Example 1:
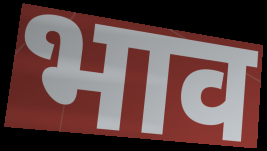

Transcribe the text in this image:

भाव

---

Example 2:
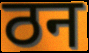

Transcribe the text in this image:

ठन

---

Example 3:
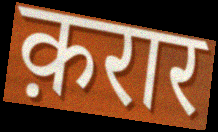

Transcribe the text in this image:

क़रार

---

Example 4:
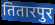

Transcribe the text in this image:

तितारपुर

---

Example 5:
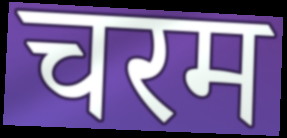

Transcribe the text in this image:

चरम